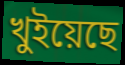
খুইয়েছে